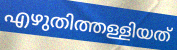
എഴുതിത്തള്ളിയത്